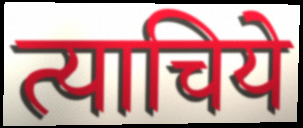
त्याचिये